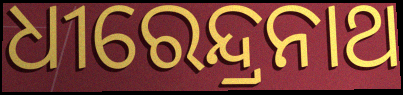
ଧୀରେନ୍ଦ୍ରନାଥ